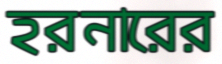
হরনারের